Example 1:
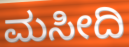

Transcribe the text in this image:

ಮಸೀದಿ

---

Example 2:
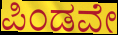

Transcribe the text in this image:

ಪಿಂಡವೇ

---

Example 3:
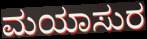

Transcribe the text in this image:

ಮಯಾಸುರ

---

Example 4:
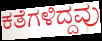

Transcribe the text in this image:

ಕತೆಗಳಿದ್ದವು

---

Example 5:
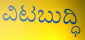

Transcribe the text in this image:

ವಿಟಬುದ್ಧಿ